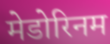
मेडोरिनम